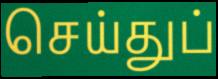
செய்துப்